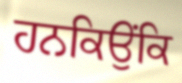
ਹਨਕਿਉਂਕਿ